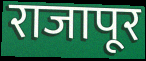
राजापूर